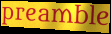
preamble